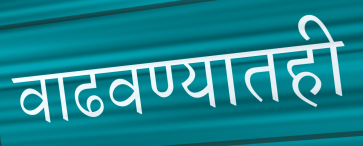
वाढवण्यातही